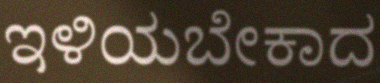
ಇಳಿಯಬೇಕಾದ